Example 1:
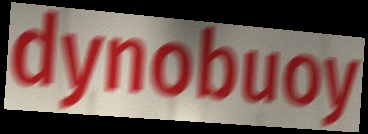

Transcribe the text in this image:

dynobuoy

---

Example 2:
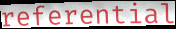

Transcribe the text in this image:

referential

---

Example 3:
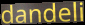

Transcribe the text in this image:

dandeli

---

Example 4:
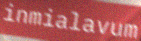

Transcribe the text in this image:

inmialavum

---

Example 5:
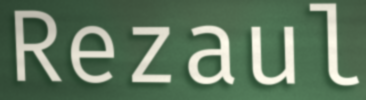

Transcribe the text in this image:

Rezaul